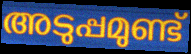
അടുപ്പമുണ്ട്